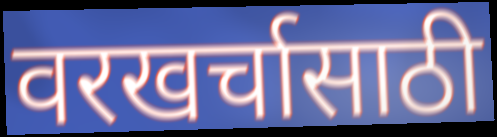
वरखर्चासाठी